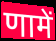
णामें